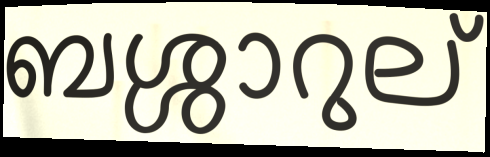
ബശ്ശാറുല്